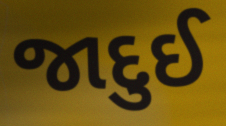
જાદુઈ